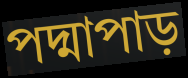
পদ্মাপাড়